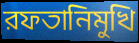
রফতানিমুখি